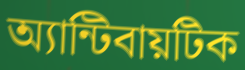
অ্যান্টিবায়টিক